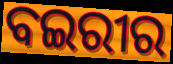
ବଇରୀର